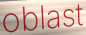
oblast